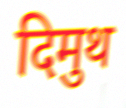
दिमुथ